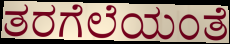
ತರಗೆಲೆಯಂತೆ